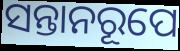
ସନ୍ତାନରୂପେ